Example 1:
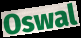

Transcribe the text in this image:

Oswal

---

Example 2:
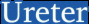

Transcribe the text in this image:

Ureter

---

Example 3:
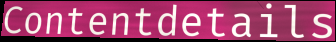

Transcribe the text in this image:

Contentdetails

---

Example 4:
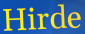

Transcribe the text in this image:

Hirde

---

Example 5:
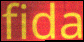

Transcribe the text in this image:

fida